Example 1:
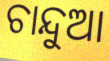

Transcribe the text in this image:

ଚାନ୍ଦୁଆ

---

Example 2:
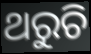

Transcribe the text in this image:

ଥରୁଚି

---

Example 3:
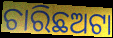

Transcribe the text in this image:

ଚାରିଛଅଟା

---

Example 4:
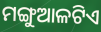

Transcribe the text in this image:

ମଙ୍ଗୁଆଳଟିଏ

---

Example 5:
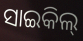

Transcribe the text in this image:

ସାଇକିଲ୍